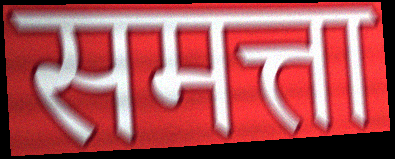
समत्ता